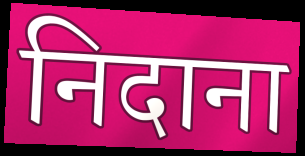
निदाना